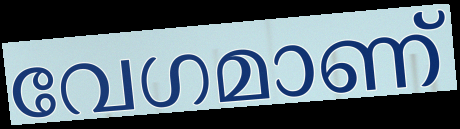
വേഗമാണ്